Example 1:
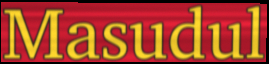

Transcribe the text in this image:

Masudul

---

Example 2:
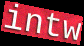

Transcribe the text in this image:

intw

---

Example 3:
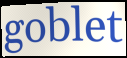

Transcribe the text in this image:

goblet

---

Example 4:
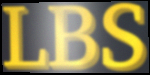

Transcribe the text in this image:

LBS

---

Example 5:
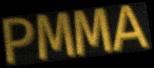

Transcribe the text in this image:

PMMA